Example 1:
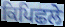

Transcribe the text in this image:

ਕਿਪਿਛਲੇ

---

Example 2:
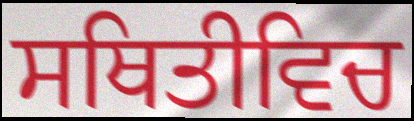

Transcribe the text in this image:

ਸਥਿਤੀਵਿਚ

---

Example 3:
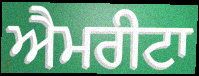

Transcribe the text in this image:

ਐਮਰੀਟਾ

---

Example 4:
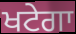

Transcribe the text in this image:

ਖਟੇਗਾ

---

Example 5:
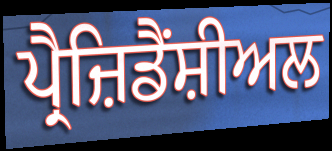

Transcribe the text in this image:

ਪ੍ਰੈਜ਼ਿਡੈਂਸ਼ੀਅਲ